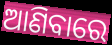
ଆଣିବାରେ